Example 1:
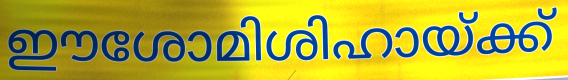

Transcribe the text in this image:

ഈശോമിശിഹായ്ക്ക്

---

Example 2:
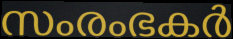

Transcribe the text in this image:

സംരംഭകർ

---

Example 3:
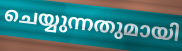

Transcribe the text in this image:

ചെയ്യുന്നതുമായി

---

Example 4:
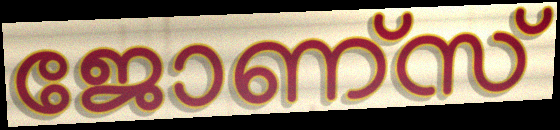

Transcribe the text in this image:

ജോണ്സ്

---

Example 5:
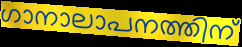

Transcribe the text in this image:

ഗാനാലാപനത്തിന്